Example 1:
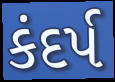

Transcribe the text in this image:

કંદર્પ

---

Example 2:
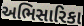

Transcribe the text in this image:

અભિસારિકા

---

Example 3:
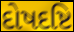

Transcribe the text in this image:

દોષદષ્ટિ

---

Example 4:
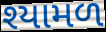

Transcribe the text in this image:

શ્યામળ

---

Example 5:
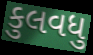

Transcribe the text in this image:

કુલવધુ